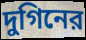
দুগিনের